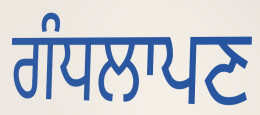
ਗੰਧਲਾਪਣ